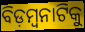
ବିଡ଼ମ୍ବନାଟିକୁ